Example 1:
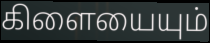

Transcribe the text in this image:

கிளையையும்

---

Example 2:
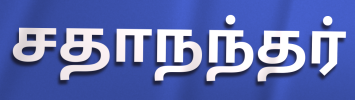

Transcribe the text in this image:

சதாநந்தர்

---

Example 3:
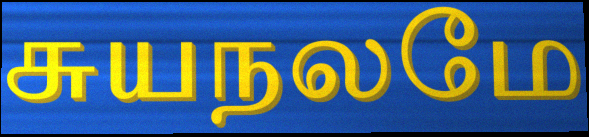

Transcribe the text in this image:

சுயநலமே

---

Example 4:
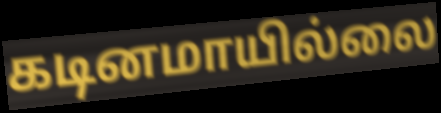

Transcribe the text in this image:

கடினமாயில்லை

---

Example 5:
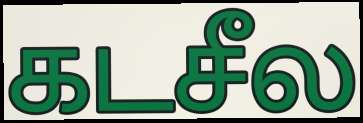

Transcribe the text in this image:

கடசீல